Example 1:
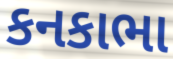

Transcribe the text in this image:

કનકાભા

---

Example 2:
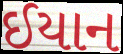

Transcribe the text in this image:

ઈયાન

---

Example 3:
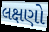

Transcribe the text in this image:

લક્ષણો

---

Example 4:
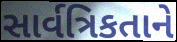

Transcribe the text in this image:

સાર્વત્રિકતાને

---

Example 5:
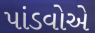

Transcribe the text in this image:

પાંડવોએ